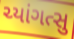
ચ્યાંગત્સુ